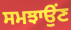
ਸਮਝਾਉਂਣ